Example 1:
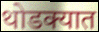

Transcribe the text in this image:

थोडक्‍यात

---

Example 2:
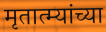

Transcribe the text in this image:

मृतात्म्यांच्या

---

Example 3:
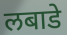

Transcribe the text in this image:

लबाडे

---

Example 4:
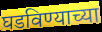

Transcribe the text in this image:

घडविण्याच्या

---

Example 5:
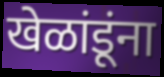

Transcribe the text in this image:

खेळांडूंना